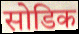
सोडिक